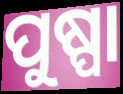
ପୁଷ୍ପା